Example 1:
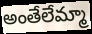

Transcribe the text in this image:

అంతేలేమ్మా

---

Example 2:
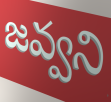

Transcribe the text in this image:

జవ్వని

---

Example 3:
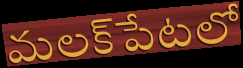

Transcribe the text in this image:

మలక్‌పేటలో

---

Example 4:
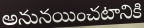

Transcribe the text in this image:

అనునయించటానికి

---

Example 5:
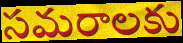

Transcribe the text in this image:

సమరాలకు